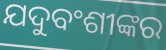
ଯଦୁବଂଶୀଙ୍କର